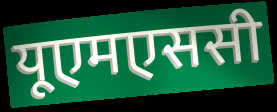
यूएमएससी